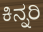
ಕಿನ್ನರಿ